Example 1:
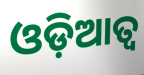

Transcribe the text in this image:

ଓଡ଼ିଆତ୍ୱ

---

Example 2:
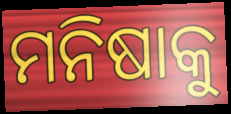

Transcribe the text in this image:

ମନିଷାକୁ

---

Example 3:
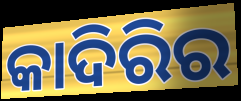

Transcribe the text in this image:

କାଦିରିର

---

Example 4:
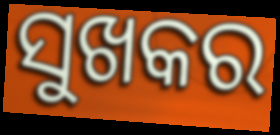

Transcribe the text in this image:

ସୁଖକର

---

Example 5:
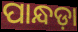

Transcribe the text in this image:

ପାନ୍ଧଡ଼ା